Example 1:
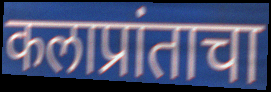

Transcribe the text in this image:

कलाप्रांताचा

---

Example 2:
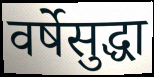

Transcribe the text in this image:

वर्षेसुद्धा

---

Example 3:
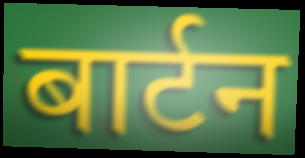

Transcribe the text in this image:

बार्टन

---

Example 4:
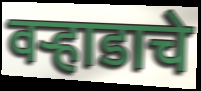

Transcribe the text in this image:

वऱ्हाडाचे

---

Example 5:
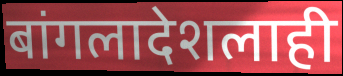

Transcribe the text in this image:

बांगलादेशलाही